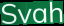
Svah